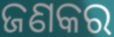
ଜଣକର